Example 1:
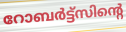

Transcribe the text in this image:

റോബർട്ട്സിന്റെ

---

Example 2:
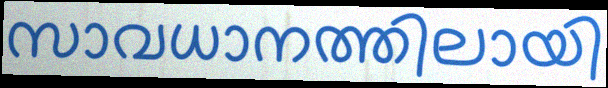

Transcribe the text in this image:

സാവധാനത്തിലായി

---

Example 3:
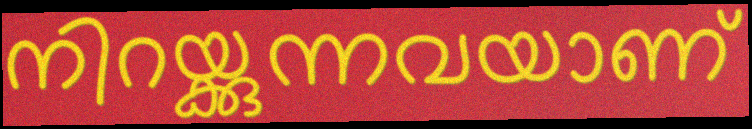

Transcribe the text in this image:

നിറയ്ക്കുന്നവയാണ്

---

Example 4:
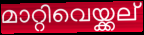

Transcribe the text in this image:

മാറ്റിവെയ്ക്കല്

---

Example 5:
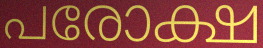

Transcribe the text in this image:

പരോക്ഷ